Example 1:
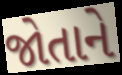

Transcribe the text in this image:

જોતાને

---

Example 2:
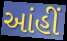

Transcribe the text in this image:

આંહીં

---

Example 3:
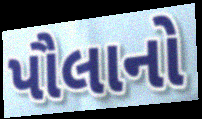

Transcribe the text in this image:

પૌલાનો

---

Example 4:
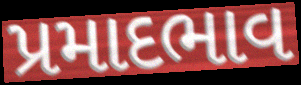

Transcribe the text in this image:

પ્રમાદભાવ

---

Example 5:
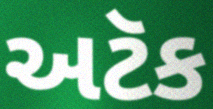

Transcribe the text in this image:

અટૅક